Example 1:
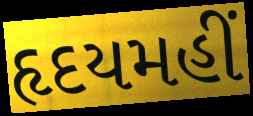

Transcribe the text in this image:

હૃદયમહીં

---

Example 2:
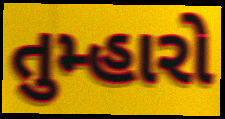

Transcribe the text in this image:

તુમ્હારો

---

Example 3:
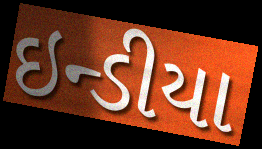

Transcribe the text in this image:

ઇન્ડીયા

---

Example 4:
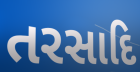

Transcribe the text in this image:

તરસાદિ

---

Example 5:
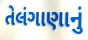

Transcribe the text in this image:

તેલંગાણાનું